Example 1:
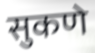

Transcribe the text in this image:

सुकणे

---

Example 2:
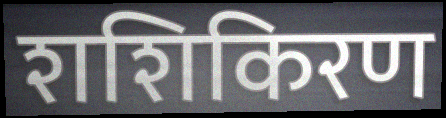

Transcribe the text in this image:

शशिकिरण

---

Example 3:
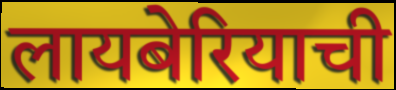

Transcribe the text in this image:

लायबेरियाची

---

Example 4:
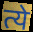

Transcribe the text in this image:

त्ये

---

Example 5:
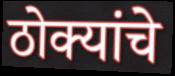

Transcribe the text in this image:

ठोक्यांचे